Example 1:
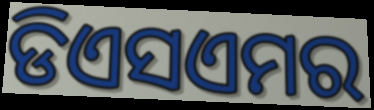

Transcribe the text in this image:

ଡିଏସଏମର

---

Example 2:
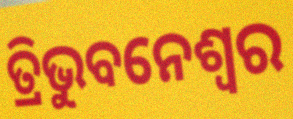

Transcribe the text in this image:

ତ୍ରିଭୁବନେଶ୍ବର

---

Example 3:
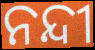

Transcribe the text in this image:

ନନ୍ଦୀ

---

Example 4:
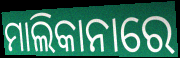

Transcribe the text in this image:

ମାଲିକାନାରେ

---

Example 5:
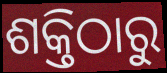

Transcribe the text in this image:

ଶକ୍ତିଠାରୁ